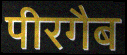
पीरगैब